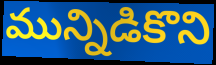
మున్నిడికొని